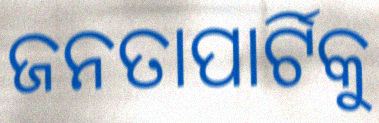
ଜନତାପାର୍ଟିକୁ